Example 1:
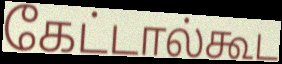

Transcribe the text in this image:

கேட்டால்கூட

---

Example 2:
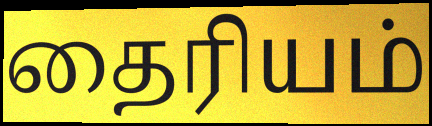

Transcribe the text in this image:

தைரியம்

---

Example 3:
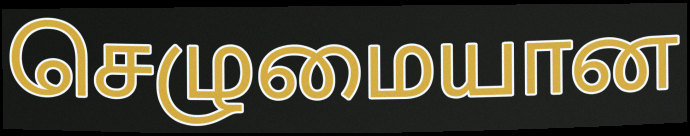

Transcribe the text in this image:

செழுமையான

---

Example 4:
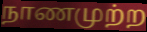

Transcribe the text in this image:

நாணமுற்ற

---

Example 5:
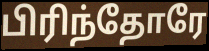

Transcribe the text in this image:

பிரிந்தோரே